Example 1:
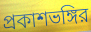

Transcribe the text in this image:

প্রকাশভঙ্গির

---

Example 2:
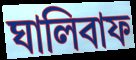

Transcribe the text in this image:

ঘালিবাফ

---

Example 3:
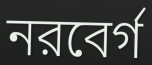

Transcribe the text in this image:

নরবের্গ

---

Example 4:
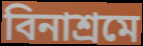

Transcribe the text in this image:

বিনাশ্রমে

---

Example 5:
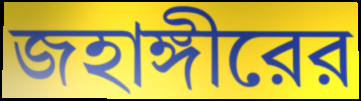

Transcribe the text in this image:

জহাঙ্গীরের